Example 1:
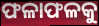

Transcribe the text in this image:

ଫଳାଫଳକୁ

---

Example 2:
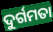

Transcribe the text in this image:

ଦୁର୍ଗମତା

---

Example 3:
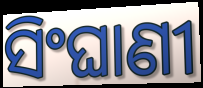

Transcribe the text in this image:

ସିଂଘାଣୀ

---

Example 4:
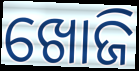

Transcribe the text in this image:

ଖୋଜି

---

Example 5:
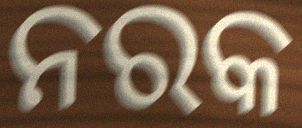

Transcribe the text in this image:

ନରକ